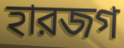
হারজগ